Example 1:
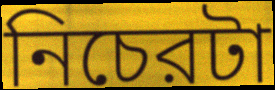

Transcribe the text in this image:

নিচেরটা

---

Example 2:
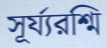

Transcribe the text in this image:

সূর্য্যরশ্মি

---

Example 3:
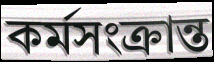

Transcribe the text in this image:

কর্মসংক্রান্ত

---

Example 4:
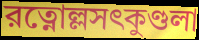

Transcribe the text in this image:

রত্নোল্লসৎকুণ্ডলা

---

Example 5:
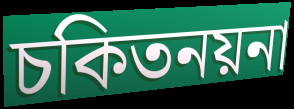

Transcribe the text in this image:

চকিতনয়না